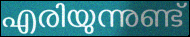
എരിയുന്നുണ്ട്